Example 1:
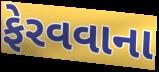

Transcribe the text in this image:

ફેરવવાના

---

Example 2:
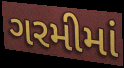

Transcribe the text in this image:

ગરમીમાં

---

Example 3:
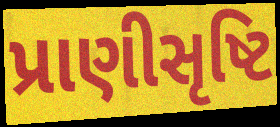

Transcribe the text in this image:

પ્રાણીસૃષ્ટિ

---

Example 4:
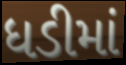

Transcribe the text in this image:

ધડીમાં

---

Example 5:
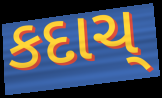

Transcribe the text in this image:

કદાચ્